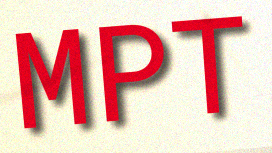
MPT